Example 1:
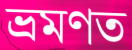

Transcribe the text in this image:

ভ্ৰমণত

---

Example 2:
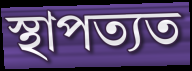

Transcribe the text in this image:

স্থাপত্যত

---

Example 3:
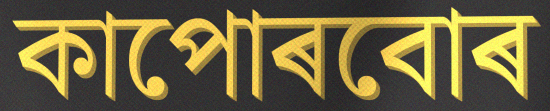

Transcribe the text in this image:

কাপোৰবোৰ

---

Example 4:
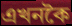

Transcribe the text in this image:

এখনকৈ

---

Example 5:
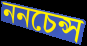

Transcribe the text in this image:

ননচেন্স